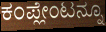
ಕಂಪ್ಲೇಂಟನ್ನೂ